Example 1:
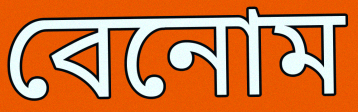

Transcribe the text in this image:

বেনোম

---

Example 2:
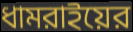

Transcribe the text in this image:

ধামরাইয়ের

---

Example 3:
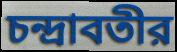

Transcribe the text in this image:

চন্দ্রাবতীর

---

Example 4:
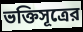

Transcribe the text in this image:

ভক্তিসূত্রের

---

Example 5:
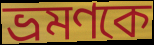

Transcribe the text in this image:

ভ্রমণকে